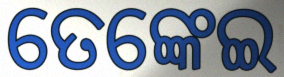
ତେଙ୍କେଇ